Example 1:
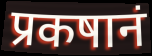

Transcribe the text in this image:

प्रकषानं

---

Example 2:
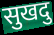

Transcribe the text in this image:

सुखदु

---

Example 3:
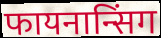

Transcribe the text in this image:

फायनान्सिंग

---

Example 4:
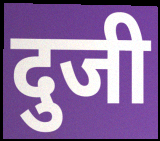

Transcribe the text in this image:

दुजी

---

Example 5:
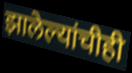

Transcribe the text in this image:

झालेल्यांचीही